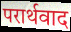
परार्थवाद